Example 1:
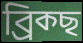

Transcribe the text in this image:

ব্ৰিক্ছ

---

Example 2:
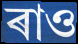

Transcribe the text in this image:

ৰাও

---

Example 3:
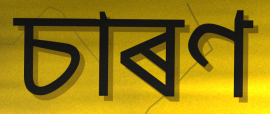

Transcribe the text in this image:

চাৰণ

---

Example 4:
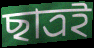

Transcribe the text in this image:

ছাত্ৰই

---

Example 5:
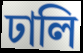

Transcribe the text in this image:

ঢালি